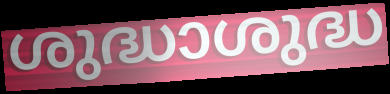
ശുദ്ധാശുദ്ധ